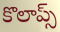
కొలాప్స్